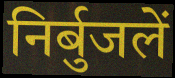
निर्बुजलें